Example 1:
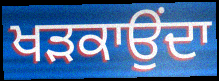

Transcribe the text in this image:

ਖੜਕਾਉਂਦਾ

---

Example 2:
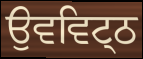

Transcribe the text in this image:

ਉਵਵਿਟ੍ਠ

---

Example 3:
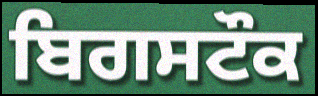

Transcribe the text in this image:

ਬਿਗਸਟੌਕ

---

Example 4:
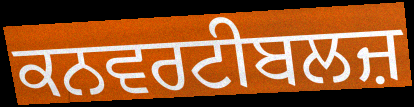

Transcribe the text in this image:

ਕਨਵਰਟੀਬਲਜ਼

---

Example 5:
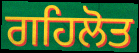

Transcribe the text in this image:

ਗਹਿਲੋਤ